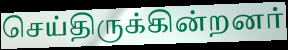
செய்திருக்கின்றனர்